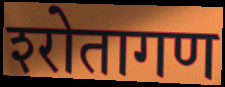
श्रोतागण